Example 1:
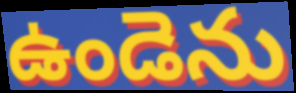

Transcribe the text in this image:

ఉండెను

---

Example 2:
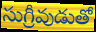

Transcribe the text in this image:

సుగ్రీవుడుతో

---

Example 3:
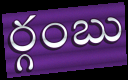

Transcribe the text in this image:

ర్గంబు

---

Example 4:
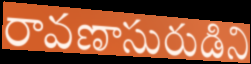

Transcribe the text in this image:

రావణాసురుడిని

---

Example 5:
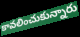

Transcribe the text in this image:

కావలించుకున్నారు